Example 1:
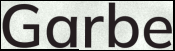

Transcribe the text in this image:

Garbe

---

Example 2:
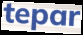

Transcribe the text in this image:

tepar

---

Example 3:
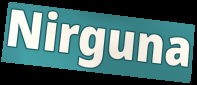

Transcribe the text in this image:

Nirguna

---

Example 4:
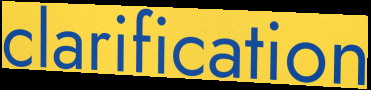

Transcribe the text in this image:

clarification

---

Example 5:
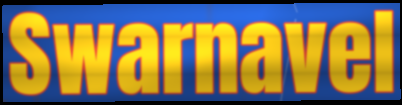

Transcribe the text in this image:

Swarnavel